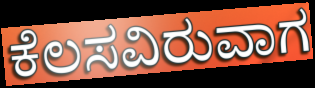
ಕೆಲಸವಿರುವಾಗ